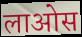
लाओस